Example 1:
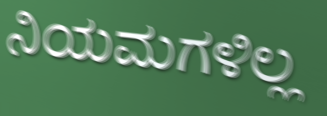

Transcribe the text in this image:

ನಿಯಮಗಳಿಲ್ಲ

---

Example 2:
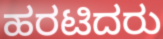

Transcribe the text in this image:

ಹರಟಿದರು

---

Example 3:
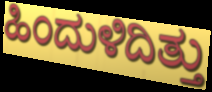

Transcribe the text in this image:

ಹಿಂದುಳಿದಿತ್ತು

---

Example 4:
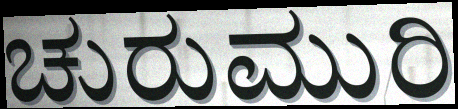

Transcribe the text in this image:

ಚುರುಮುರಿ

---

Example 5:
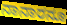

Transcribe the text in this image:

ನಾನಾರನೂ